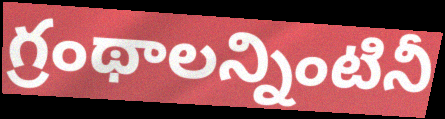
గ్రంథాలన్నింటినీ